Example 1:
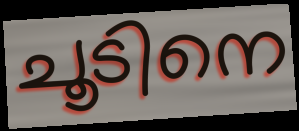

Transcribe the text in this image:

ചൂടിനെ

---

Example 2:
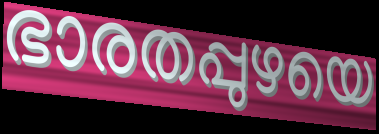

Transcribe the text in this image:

ഭാരതപ്പുഴയെ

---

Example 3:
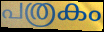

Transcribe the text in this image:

പത്രകം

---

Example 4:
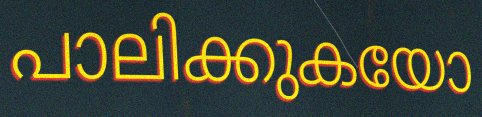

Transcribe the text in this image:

പാലിക്കുകയോ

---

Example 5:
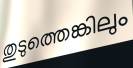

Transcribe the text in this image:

തുടുത്തെങ്കിലും